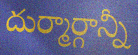
దుర్మార్గాన్నీ